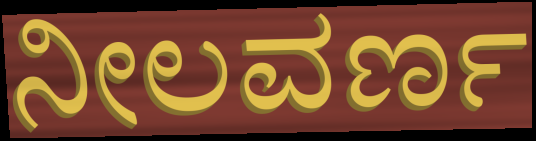
ನೀಲವರ್ಣ